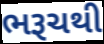
ભરૂચથી